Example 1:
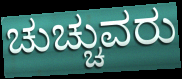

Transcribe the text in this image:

ಚುಚ್ಚುವರು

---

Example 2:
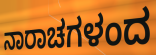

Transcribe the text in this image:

ನಾರಾಚಗಳಂದ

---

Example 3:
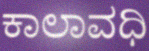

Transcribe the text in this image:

ಕಾಲಾವಧಿ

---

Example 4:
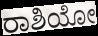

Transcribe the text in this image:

ರಾಶಿಯೋ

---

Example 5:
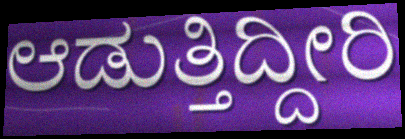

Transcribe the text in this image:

ಆಡುತ್ತಿದ್ದೀರಿ